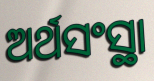
ଅର୍ଥସଂସ୍ଥା